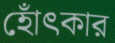
হোঁৎকার